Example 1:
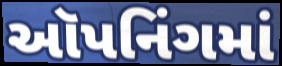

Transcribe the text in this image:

ઑપનિંગમાં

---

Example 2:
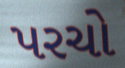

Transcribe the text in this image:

પરચો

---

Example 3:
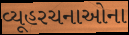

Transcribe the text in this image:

વ્યૂહરચનાઓના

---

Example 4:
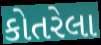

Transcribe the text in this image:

કોતરેલા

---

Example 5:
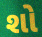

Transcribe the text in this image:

શો